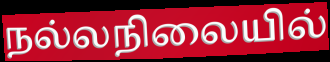
நல்லநிலையில்